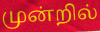
முன்றில்